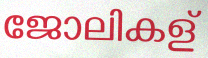
ജോലികള്